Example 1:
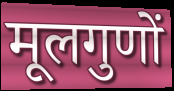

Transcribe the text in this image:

मूलगुणों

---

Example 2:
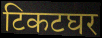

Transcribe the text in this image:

टिकटघर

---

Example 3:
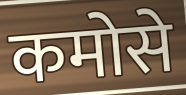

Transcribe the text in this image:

कमोसे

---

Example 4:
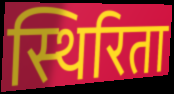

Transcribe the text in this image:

स्थिरिता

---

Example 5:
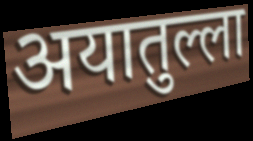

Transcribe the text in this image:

अयातुल्‍ला